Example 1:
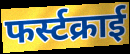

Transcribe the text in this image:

फर्स्टक्राई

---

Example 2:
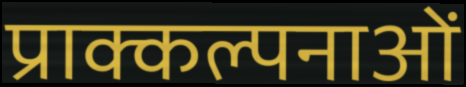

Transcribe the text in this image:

प्राक्कल्पनाओं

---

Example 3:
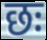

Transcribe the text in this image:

छः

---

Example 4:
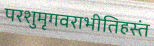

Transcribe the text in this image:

परशुमृगवराभीतिहस्तं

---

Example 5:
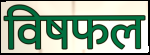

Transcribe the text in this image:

विषफल